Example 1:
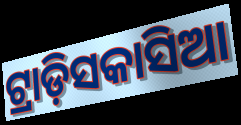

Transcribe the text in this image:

ଟ୍ରାଡ଼ିସକାସିଆ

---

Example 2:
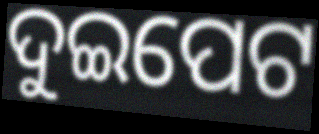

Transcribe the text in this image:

ଦୁଇପେଟ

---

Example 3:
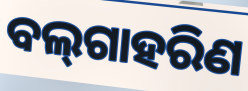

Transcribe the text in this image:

ବଲ୍‌ଗାହରିଣ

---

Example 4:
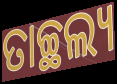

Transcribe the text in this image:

ତାଚ୍ଛଲ୍ଯ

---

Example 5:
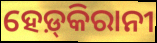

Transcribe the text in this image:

ହେଡ଼୍‌କିରାନୀ